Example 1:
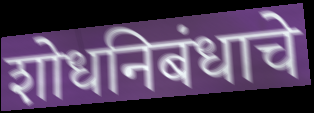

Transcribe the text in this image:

शोधनिबंधाचे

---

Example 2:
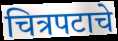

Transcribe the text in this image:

चित्रपटाचे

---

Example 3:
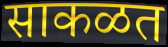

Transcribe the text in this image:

साकळत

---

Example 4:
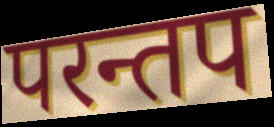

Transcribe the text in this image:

परन्तप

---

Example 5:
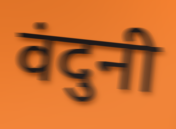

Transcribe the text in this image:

वंदुनी